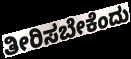
ತೀರಿಸಬೇಕೆಂದು